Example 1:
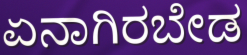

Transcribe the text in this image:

ಏನಾಗಿರಬೇಡ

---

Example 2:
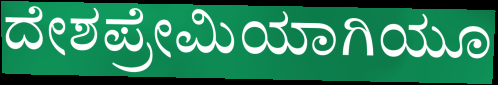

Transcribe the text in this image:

ದೇಶಪ್ರೇಮಿಯಾಗಿಯೂ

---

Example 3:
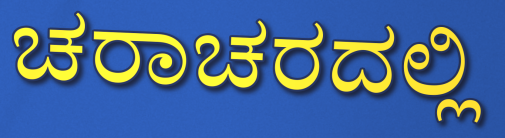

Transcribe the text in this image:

ಚರಾಚರದಲ್ಲಿ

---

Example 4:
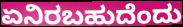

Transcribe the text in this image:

ಏನಿರಬಹುದೆಂದು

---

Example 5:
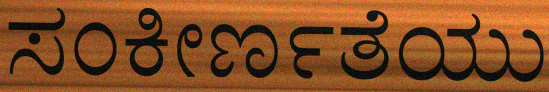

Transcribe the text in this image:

ಸಂಕೀರ್ಣತೆಯು